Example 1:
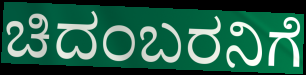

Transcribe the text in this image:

ಚಿದಂಬರನಿಗೆ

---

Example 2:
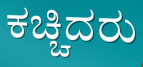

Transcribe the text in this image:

ಕಚ್ಚಿದರು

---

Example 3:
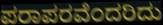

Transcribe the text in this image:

ಪರಾಪರವೆಂದರಿದು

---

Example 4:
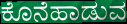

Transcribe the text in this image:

ಕೊನೆಹಾಡುವ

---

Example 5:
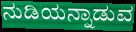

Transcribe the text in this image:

ನುಡಿಯನ್ನಾಡುವ